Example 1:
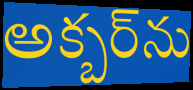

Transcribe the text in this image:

అక్బర్‌ను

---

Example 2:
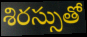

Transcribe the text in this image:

శిరస్సుతో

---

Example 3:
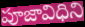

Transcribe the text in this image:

పూజావిధిని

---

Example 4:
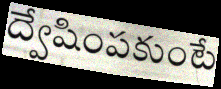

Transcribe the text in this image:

ద్వేషింపకుంటే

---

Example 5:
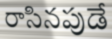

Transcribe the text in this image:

రాసినపుడే